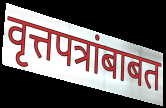
वृत्तपत्रांबाबत